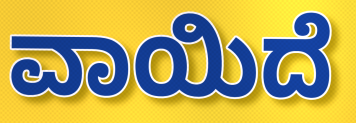
ವಾಯಿದೆ